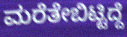
ಮರೆತೇಬಿಟ್ಟಿದ್ದೆ